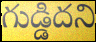
గుడ్డిదని